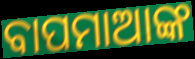
ବାପମାଆଙ୍କ